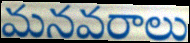
మనవరాలు